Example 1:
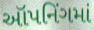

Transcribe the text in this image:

ઑપનિંગમાં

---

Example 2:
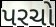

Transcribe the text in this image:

પરચો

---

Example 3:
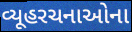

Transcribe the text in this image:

વ્યૂહરચનાઓના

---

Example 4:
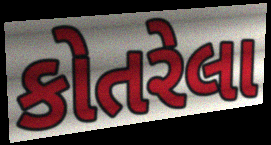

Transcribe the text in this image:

કોતરેલા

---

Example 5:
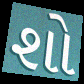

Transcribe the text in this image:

શો